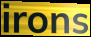
irons